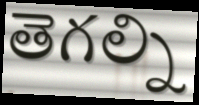
తెగల్ని